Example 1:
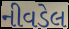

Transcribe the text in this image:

નીવડેલ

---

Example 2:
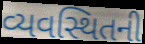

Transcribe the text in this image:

વ્યવસ્થિતની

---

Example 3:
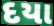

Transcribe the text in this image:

દયા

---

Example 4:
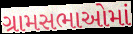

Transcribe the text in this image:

ગ્રામસભાઓમાં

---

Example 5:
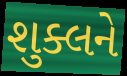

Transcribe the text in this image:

શુક્લને